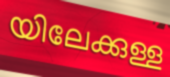
യിലേക്കുള്ള